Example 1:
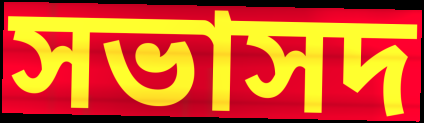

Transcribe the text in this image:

সভাসদ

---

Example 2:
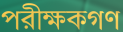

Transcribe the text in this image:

পরীক্ষকগণ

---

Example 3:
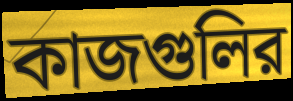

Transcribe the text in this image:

কাজগুলির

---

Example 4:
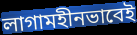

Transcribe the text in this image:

লাগামহীনভাবেই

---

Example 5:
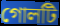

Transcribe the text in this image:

গোলটি